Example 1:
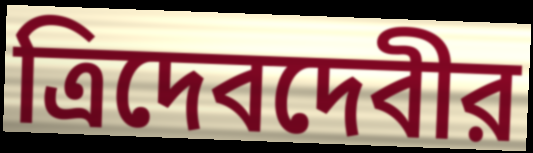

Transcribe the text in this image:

ত্রিদেবদেবীর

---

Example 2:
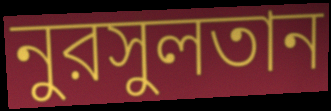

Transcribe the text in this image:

নুরসুলতান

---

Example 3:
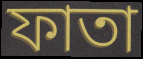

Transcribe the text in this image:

ফাতা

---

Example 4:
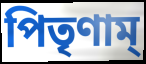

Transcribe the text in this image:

পিতৃণাম্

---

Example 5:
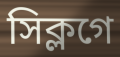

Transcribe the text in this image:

সিক্লগে